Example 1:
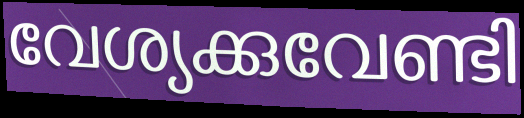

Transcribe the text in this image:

വേശ്യക്കുവേണ്ടി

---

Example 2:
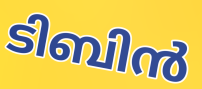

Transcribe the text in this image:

ടിബിൻ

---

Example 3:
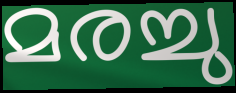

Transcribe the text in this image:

മരച്ചു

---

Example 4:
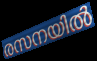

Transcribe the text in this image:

രസനയിൽ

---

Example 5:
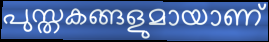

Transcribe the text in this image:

പുസ്തകങ്ങളുമായാണ്